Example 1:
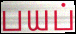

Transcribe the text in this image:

பயப்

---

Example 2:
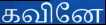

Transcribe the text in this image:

கவினே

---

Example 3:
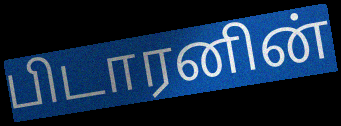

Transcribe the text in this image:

பிடாரனின்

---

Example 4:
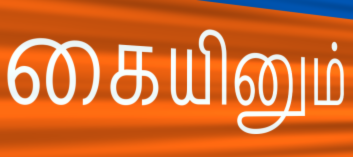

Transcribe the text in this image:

கையினும்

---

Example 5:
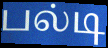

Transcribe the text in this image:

பல்டி